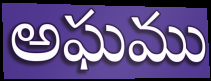
అఘము